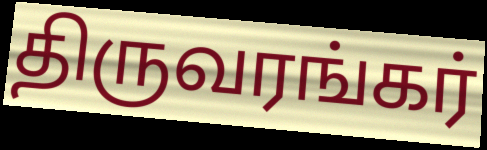
திருவரங்கர்